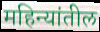
महिन्यांतील